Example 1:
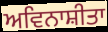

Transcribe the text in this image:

ਅਵਿਨਾਸ਼ੀਤਾ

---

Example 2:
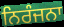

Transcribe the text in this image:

ਨਿਰੰਜਨਾ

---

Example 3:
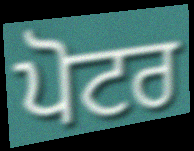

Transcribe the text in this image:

ਪੋਟਰ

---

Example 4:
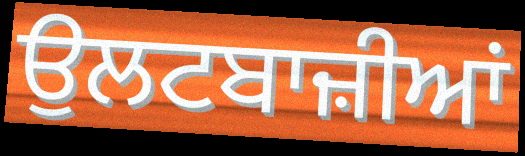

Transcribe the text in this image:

ਉਲਟਬਾਜ਼ੀਆਂ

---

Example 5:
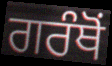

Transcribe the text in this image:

ਗਰੰਥੋਂ